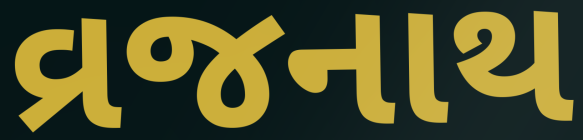
વ્રજનાથ